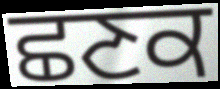
ਛਣਕ